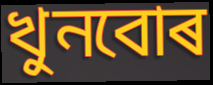
খুনবোৰ